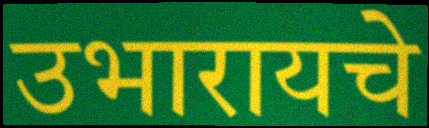
उभारायचे